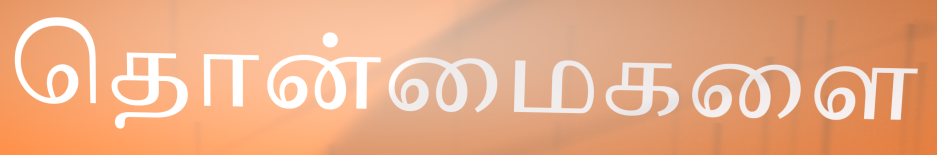
தொன்மைகளை